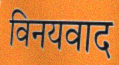
विनयवाद